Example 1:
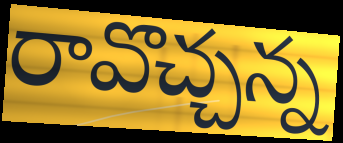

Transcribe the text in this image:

రావొచ్చన్న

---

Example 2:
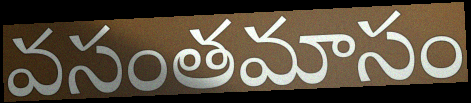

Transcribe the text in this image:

వసంతమాసం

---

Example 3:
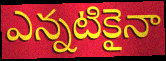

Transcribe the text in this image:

ఎన్నటికైనా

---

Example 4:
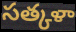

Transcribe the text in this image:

సత్కళా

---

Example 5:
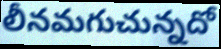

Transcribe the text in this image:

లీనమగుచున్నదో